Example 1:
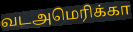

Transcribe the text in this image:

வடஅமெரிக்கா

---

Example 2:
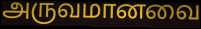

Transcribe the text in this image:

அருவமானவை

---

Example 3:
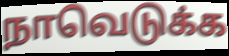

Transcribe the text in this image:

நாவெடுக்க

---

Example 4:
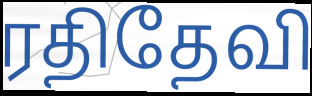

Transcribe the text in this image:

ரதிதேவி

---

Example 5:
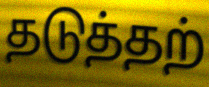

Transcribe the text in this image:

தடுத்தற்